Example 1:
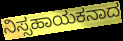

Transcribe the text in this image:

ನಿಸ್ಸಹಾಯಕನಾದ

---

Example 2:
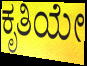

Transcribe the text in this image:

ಕೃತಿಯೇ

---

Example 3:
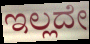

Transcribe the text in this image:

ಇಲ್ಲದೇ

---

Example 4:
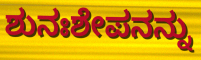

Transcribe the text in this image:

ಶುನಃಶೇಪನನ್ನು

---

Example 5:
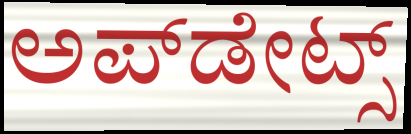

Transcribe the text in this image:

ಅಪ್‌ಡೇಟ್ಸ್